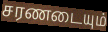
சரணடையும்